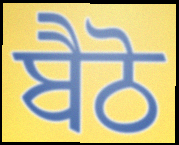
ਬੈਠੋ